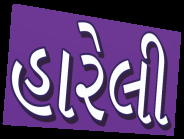
હારેલી